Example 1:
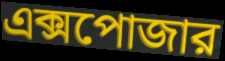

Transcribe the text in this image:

এক্সপোজার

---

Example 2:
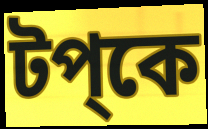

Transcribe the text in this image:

টপ্কে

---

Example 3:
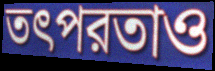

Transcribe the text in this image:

তৎপরতাও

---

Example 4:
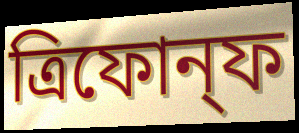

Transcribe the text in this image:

ত্রিফোন্ফ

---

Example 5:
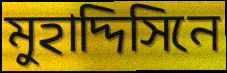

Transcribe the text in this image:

মুহাদ্দিসিনে